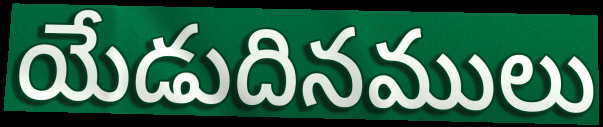
యేడుదినములు